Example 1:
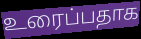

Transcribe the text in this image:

உரைப்பதாக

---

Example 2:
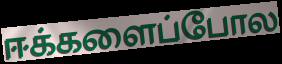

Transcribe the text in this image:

ஈக்களைப்போல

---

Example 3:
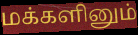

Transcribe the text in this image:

மக்களினும்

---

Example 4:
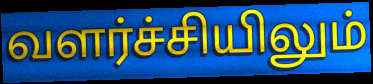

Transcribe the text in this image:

வளர்ச்சியிலும்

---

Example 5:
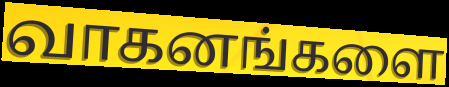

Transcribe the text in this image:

வாகனங்களை